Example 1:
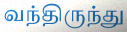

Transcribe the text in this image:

வந்திருந்து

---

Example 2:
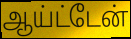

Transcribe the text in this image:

ஆய்ட்டேன்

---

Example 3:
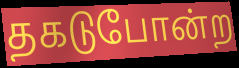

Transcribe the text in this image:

தகடுபோன்ற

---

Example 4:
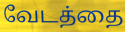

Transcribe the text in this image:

வேடத்தை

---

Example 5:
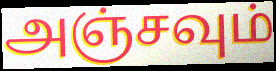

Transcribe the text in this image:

அஞ்சவும்